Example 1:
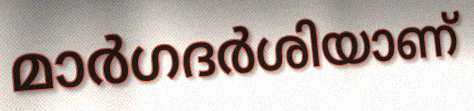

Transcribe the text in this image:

മാർഗദർശിയാണ്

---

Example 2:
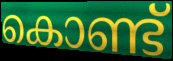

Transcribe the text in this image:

കൊണ്ട്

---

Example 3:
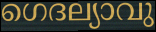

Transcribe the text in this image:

ഗെദല്യാവു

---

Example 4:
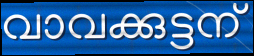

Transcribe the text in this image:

വാവക്കുട്ടന്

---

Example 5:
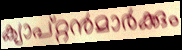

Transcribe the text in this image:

ക്യാപ്റ്റൻമാർക്കും